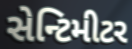
સેન્ટિમીટર